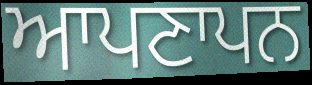
ਆਪਣਾਪਨ